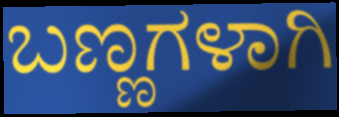
ಬಣ್ಣಗಳಾಗಿ